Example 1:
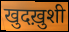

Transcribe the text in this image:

खुदख़ुशी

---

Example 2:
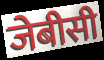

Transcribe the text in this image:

जेबीसी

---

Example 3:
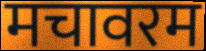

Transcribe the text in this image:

मचावरम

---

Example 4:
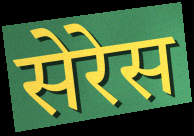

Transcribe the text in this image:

सेरेस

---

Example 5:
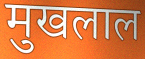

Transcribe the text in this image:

मुखलाल